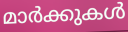
മാർക്കുകൾ